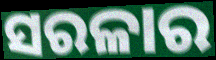
ସରଳାର